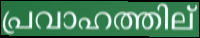
പ്രവാഹത്തില്